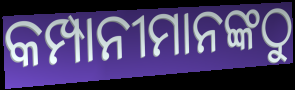
କମ୍ପାନୀମାନଙ୍କଠୁ